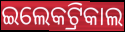
ଇଲେକଟ୍ରିକାଲ